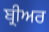
ਬ੍ਰੀਅਰ